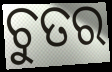
ଚୁତର